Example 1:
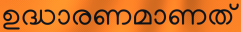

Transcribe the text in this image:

ഉദ്ധാരണമാണത്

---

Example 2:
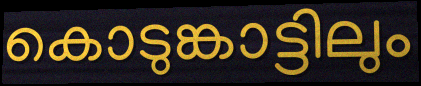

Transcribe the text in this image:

കൊടുങ്കാട്ടിലും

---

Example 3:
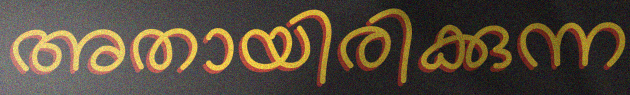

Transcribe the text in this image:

അതായിരിക്കുന്ന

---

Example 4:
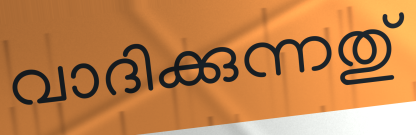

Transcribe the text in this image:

വാദിക്കുന്നതു്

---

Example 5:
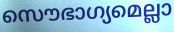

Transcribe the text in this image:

സൌഭാഗ്യമെല്ലാ